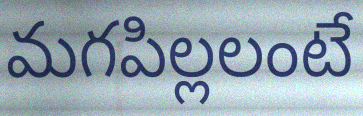
మగపిల్లలంటే